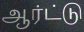
ஆர்ட்டு